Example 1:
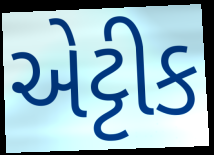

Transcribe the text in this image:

એટ્ટીક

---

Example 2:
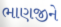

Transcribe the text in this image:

ભાણજીને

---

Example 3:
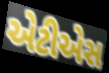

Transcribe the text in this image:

એટીએસ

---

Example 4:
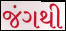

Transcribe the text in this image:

જંગથી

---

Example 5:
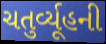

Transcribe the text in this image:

ચતુર્વ્યૂહની